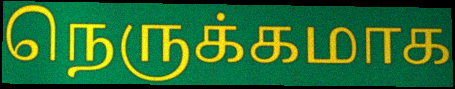
நெருக்கமாக